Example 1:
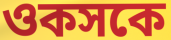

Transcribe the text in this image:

ওকসকে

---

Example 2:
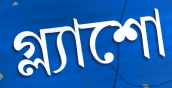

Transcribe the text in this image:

গ্ল্যাশো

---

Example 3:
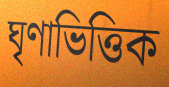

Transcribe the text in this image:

ঘৃণাভিত্তিক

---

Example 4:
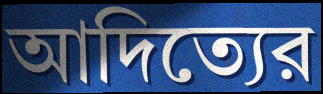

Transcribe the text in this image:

আদিত্যের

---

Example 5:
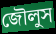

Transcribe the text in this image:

জৌলুস